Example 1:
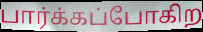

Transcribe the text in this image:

பார்க்கப்போகிற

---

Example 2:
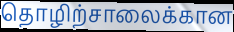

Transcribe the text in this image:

தொழிற்சாலைக்கான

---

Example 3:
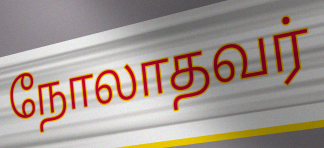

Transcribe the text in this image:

நோலாதவர்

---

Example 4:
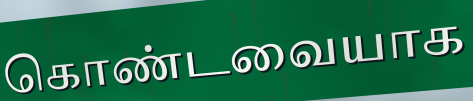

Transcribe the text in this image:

கொண்டவையாக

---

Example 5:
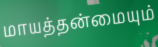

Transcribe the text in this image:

மாயத்தன்மையும்